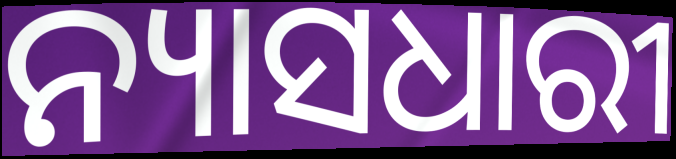
ନ୍ୟାସଧାରୀ